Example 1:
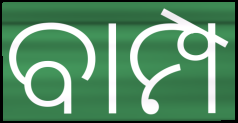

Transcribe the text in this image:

ବାମ୍ପ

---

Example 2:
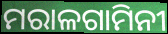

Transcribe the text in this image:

ମରାଳଗାମିନୀ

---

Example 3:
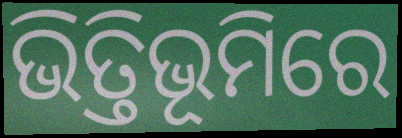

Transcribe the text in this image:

ଭିତ୍ତିଭୂମିରେ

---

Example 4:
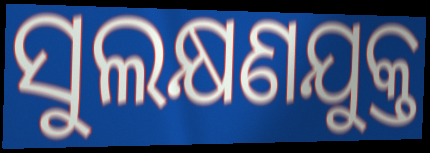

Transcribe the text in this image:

ସୁଲକ୍ଷଣଯୁକ୍ତ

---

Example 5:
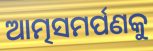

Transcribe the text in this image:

ଆତ୍ମସମର୍ପଣକୁ